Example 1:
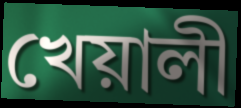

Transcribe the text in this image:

খেয়ালী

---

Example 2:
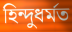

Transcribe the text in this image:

হিন্দুধৰ্মত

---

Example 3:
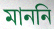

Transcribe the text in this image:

মাননি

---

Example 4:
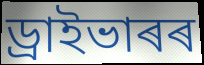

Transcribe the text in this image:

ড্ৰাইভাৰৰ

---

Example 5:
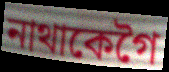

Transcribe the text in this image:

নাথাকেগৈ